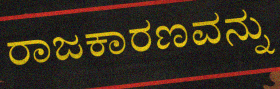
ರಾಜಕಾರಣವನ್ನು